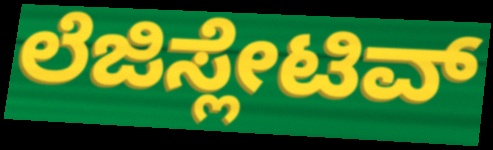
ಲೆಜಿಸ್ಲೇಟಿವ್